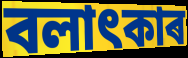
বলাৎকাৰ